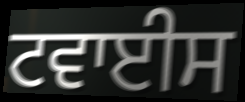
ਟਵਾਈਸ